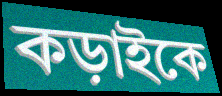
কড়াইকে